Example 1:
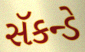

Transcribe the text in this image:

સૅકન્ડે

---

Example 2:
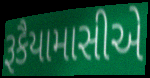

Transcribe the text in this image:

રૂકૈયામાસીએ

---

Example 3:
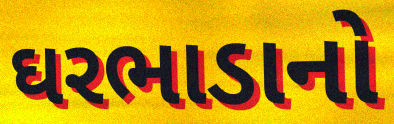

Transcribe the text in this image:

ઘરભાડાનો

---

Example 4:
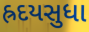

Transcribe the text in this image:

હ્રદયસુધા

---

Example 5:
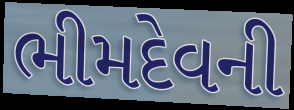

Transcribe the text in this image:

ભીમદેવની